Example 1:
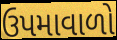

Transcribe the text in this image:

ઉપમાવાળો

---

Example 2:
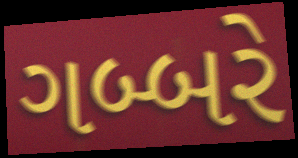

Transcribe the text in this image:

ગબ્બરે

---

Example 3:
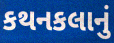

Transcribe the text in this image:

કથનકલાનું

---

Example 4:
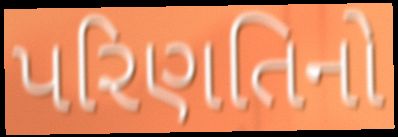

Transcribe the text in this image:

પરિણતિનો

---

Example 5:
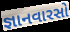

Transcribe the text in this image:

જ્ઞાનવારસો